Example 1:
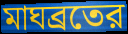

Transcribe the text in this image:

মাঘব্রতের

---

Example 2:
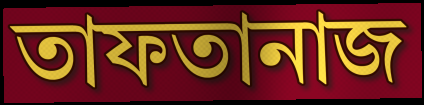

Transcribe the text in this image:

তাফতানাজ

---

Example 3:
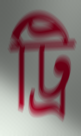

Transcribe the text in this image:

ট্রি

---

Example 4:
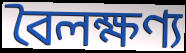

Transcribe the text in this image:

বৈলক্ষণ্য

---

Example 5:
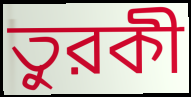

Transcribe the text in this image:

তুরকী